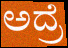
ಅದ್ರೆ